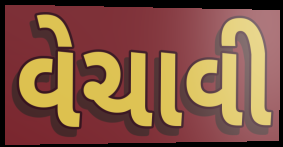
વેચાવી